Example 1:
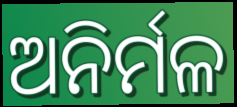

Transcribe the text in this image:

ଅନିର୍ମଳ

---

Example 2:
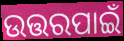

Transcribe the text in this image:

ଉତ୍ତରପାଇଁ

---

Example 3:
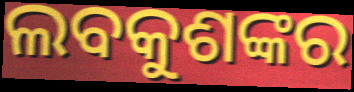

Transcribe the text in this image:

ଲବକୁଶଙ୍କର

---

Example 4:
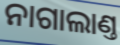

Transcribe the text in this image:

ନାଗାଲାଣ୍ତ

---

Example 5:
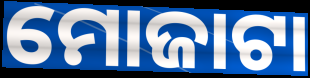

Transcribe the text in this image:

ମୋଜାଟା